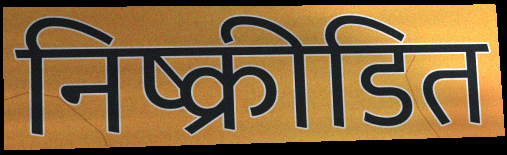
निष्क्रीडित